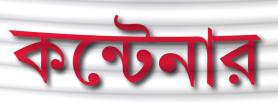
কন্টেনার